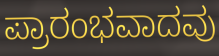
ಪ್ರಾರಂಭವಾದವು